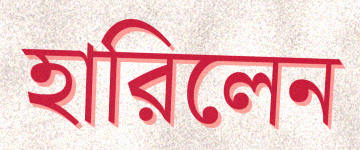
হারিলেন